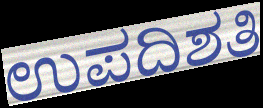
ಉಪದಿಶತಿ